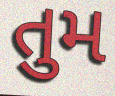
તુમ